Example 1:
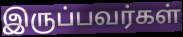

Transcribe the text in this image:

இருப்பவர்கள்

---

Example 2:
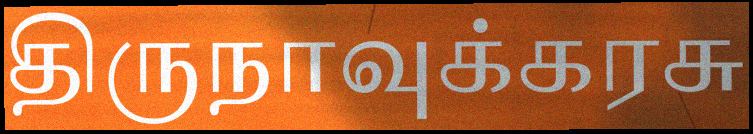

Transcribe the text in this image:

திருநாவுக்கரசு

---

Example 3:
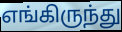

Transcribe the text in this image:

எங்கிருந்து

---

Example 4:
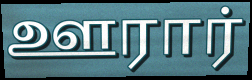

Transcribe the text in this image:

ஊரார்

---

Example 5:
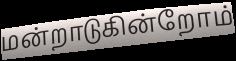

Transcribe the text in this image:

மன்றாடுகின்றோம்